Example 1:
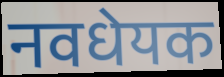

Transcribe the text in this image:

नवधेयक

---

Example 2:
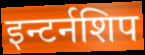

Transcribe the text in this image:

इन्टर्नशिप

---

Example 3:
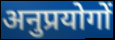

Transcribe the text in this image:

अनुप्रयोगों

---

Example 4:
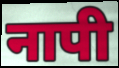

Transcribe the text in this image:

नापी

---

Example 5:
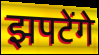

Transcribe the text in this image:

झपटेंगे